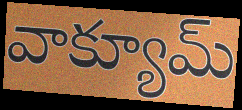
వాక్యూమ్